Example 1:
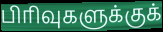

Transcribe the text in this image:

பிரிவுகளுக்குக்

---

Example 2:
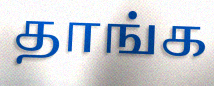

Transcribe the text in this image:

தாங்க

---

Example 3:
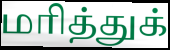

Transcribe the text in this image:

மரித்துக்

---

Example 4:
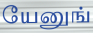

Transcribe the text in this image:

யேனுங்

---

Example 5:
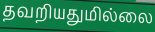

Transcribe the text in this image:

தவறியதுமில்லை